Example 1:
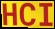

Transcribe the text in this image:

HCI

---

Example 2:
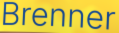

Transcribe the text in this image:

Brenner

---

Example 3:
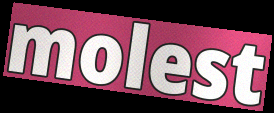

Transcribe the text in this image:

molest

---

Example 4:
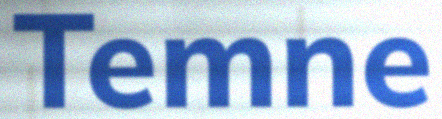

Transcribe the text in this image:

Temne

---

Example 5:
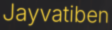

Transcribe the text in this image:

Jayvatiben